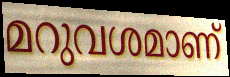
മറുവശമാണ്